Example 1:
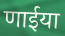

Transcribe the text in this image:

णाईया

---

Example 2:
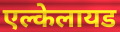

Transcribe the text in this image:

एल्केलायड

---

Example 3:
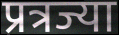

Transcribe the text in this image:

प्रत्रज्या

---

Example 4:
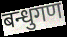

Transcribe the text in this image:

बन्धुगण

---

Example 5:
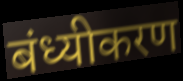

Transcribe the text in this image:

बंध्यीकरण